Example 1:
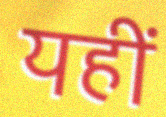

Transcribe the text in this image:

यहीं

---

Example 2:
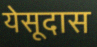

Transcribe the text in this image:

येसूदास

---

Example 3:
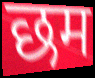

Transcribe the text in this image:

छम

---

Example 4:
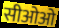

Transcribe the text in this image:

सीओओ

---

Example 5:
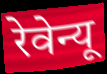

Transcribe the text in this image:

रेवेन्यू